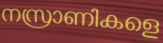
നസ്രാണികളെ